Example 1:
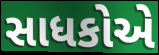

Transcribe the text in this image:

સાધકોએ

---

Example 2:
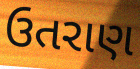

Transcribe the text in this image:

ઉતરાણ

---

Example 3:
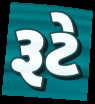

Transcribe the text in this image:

રૂટે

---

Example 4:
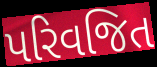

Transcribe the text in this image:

પરિવજિત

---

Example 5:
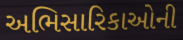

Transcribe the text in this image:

અભિસારિકાઓની